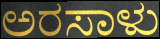
ಅರಸಾಳು